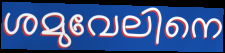
ശമുവേലിനെ